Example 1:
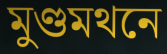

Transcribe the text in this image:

মুণ্ডমথনে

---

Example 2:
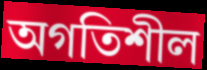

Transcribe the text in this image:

অগতিশীল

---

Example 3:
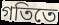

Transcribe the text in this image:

গতিতে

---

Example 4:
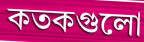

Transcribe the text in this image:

কতকগুলো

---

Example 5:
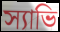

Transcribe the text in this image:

স্যাভি